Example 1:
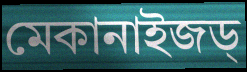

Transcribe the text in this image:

মেকানাইজড্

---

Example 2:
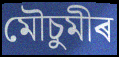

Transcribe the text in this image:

মৌচুমীৰ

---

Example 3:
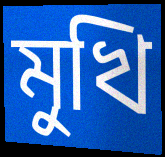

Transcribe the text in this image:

মুখি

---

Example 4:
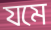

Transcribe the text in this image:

যমে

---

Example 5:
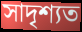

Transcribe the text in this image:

সাদৃশ্যত